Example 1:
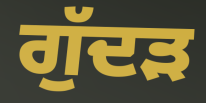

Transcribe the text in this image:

ਗੁੱਦੜ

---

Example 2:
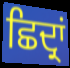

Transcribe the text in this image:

ਛਿਦ੍ਰਾਂ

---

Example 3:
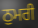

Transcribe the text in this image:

ਠੁਮਰੀ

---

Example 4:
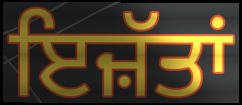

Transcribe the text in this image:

ਇਜ਼ੱਤਾਂ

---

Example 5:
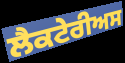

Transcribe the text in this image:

ਲੈਕਟੇਰੀਅਸ